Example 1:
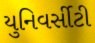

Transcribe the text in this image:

યુનિવર્સીટી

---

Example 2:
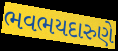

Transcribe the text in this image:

ભવભયદારુણે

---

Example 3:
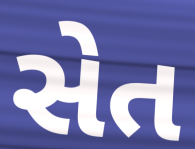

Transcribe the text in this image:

સેત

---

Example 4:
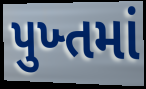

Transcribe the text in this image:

પુખ્તમાં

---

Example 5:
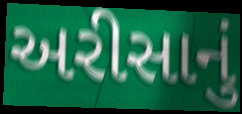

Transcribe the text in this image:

અરીસાનું